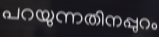
പറയുന്നതിനപ്പുറം